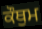
ਕੌਥੁਮ